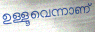
ഉള്ളൂവെന്നാണ്